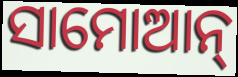
ସାମୋଆନ୍